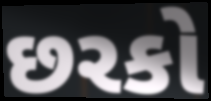
છરકો